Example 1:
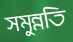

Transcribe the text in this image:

সমুন্নতি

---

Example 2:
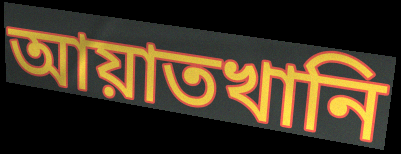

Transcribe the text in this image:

আয়াতখানি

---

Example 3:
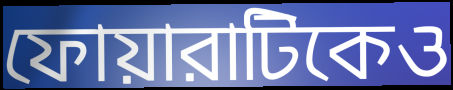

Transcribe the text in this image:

ফোয়ারাটিকেও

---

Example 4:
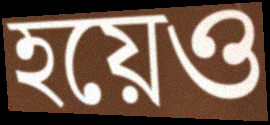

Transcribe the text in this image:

হয়েও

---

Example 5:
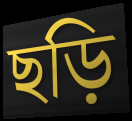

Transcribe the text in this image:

ছড়ি